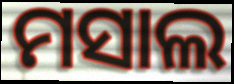
ମସାଲ